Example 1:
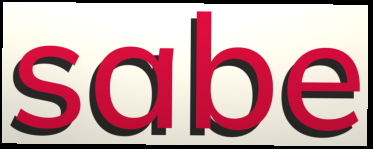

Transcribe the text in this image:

sabe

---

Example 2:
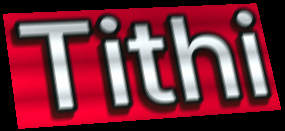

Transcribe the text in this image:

Tithi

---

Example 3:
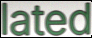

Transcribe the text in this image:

lated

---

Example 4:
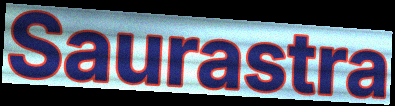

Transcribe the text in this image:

Saurastra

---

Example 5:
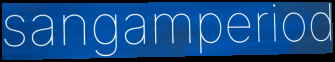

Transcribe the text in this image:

sangamperiod